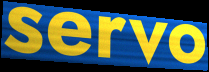
servo